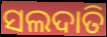
ସଲଦାତି